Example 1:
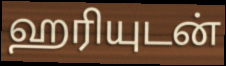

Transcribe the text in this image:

ஹரியுடன்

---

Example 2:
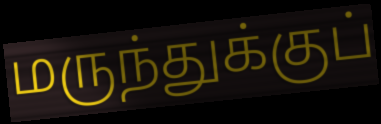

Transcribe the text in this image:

மருந்துக்குப்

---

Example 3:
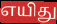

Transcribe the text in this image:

எயிது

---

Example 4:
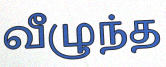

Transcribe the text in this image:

வீழுந்த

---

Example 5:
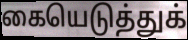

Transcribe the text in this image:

கையெடுத்துக்